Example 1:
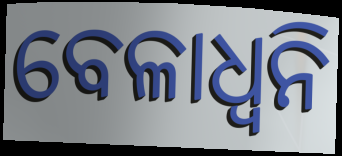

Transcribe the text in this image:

ବେଳାଧ୍ୱନି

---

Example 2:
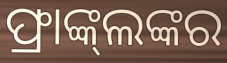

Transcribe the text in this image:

ଫ୍ରାଙ୍କ୍‌ଲଙ୍କର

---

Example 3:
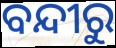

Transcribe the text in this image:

ବନ୍ଦୀରୁ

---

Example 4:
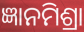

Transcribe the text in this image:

ଜ୍ଞାନମିଶ୍ରା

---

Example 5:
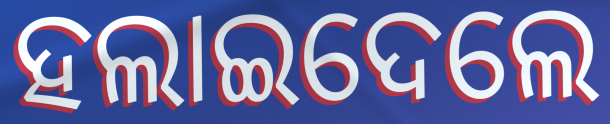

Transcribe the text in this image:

ହଲାଇଦେଲେ